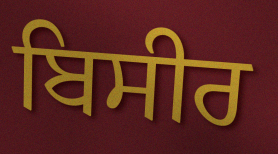
ਬਿਸੀਰ